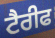
ਟੈਰੀਫ